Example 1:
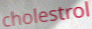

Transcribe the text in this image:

cholestrol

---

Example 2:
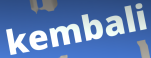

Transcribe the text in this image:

kembali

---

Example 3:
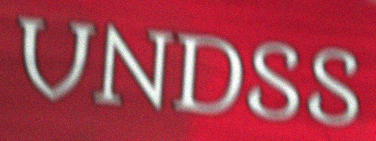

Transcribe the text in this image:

UNDSS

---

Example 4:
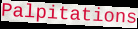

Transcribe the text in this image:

Palpitations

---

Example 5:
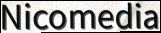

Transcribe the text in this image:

Nicomedia